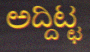
ಅದ್ದಿಟ್ಟ